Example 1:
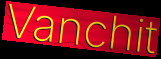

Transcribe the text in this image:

Vanchit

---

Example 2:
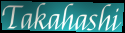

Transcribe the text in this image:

Takahashi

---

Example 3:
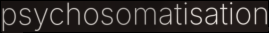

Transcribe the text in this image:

psychosomatisation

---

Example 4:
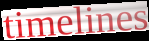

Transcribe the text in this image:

timelines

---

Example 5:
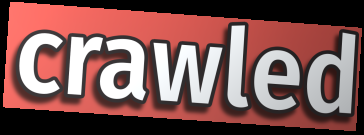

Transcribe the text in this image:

crawled